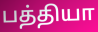
பத்தியா